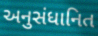
અનુસંધાનિત